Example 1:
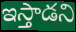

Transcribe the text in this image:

ఇస్తాడని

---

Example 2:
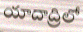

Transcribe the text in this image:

యాదాద్రిలో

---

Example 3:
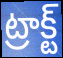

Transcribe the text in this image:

ట్రాక్ట్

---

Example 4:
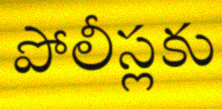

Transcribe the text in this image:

పోలీస్లకు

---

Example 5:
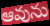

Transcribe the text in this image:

ఆవును